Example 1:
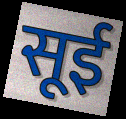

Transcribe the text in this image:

सूई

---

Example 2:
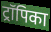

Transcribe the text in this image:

ट्रॉपिका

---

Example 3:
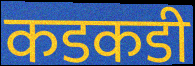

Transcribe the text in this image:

कडकडी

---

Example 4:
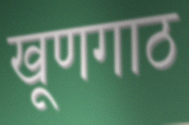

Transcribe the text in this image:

खूणगाठ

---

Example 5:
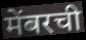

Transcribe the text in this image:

मेंबरची